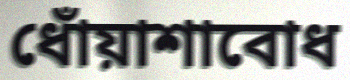
ধোঁয়াশাবোধ